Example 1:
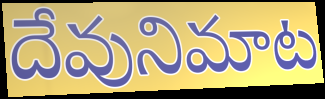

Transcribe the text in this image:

దేవునిమాట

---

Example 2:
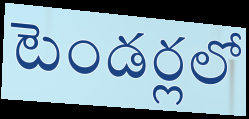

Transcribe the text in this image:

టెండర్లలో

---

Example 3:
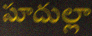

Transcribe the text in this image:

సూదుల్లా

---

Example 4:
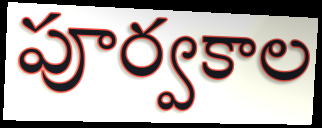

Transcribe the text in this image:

పూర్వకాల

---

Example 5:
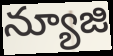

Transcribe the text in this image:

న్యూజి